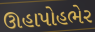
ઊહાપોહભેર